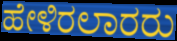
ಹೇಳಿರಲಾರರು